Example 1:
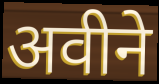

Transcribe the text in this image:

अवीने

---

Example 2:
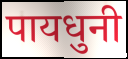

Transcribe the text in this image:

पायधुनी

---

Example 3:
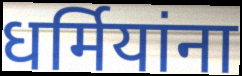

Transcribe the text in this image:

धर्मियांना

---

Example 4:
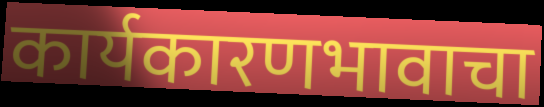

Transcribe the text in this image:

कार्यकारणभावाचा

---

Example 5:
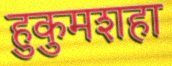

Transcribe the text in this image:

हुकुमशहा